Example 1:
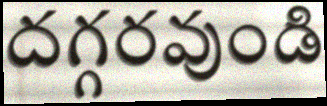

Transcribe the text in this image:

దగ్గరవుండి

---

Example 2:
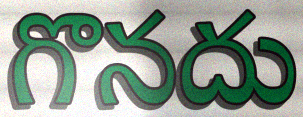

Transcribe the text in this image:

గొనదు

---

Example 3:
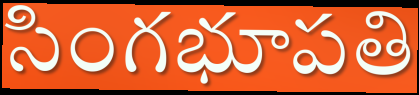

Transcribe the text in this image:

సింగభూపతి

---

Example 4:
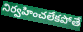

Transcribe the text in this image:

నిర్వహించలేకపోతే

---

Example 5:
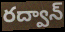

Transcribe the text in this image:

రద్వాన్